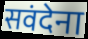
सवंदेना